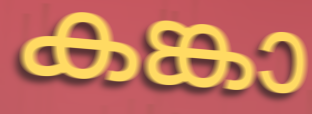
കങ്കാ